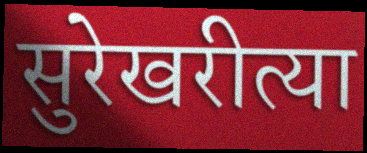
सुरेखरीत्या